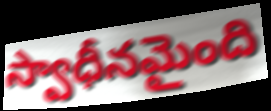
స్వాధీనమైంది